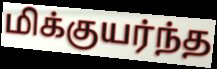
மிக்குயர்ந்த